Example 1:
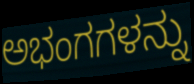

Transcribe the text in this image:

ಅಭಂಗಗಳನ್ನು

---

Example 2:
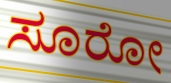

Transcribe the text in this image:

ಸೂರೋ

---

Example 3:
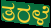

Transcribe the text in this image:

ತರಳೆ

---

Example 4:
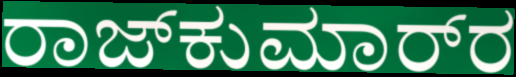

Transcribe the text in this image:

ರಾಜ್‌ಕುಮಾರ್‌ರ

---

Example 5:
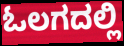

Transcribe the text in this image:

ಓಲಗದಲ್ಲಿ